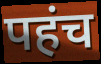
पहंच